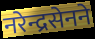
नरेन्द्रसेनने